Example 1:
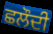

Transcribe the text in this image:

ਛਲੌਦੀ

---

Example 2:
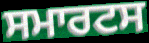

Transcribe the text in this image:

ਸਮਾਰਟਸ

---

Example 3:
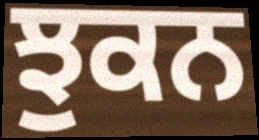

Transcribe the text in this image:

ਝੁਕਨ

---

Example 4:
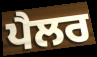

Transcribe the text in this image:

ਪੈਲਰ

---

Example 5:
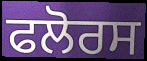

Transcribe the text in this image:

ਫਲੋਰਸ